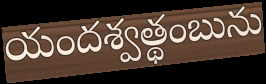
యందశ్వత్థంబును